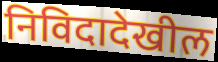
निविदादेखील